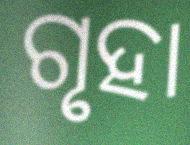
ଗୃହା